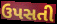
ઉપસતી